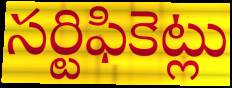
సర్టిఫికెట్లు